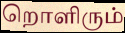
றொளிரும்